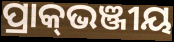
ପ୍ରାକ୍‌ଭଞ୍ଜୀୟ